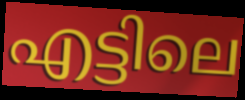
എട്ടിലെ